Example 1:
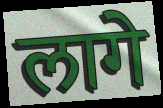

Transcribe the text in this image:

लागे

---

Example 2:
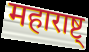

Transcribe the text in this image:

महाराष्ट्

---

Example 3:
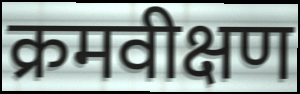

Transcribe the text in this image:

क्रमवीक्षण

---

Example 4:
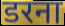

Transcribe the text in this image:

डरना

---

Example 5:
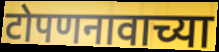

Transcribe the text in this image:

टोपणनावाच्या